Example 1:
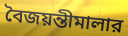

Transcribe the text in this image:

বৈজয়ন্তীমালার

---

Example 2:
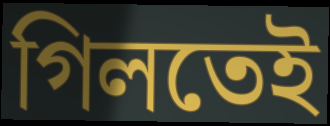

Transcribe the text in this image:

গিলতেই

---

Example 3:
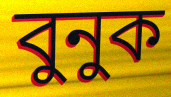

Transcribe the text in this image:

বুনুক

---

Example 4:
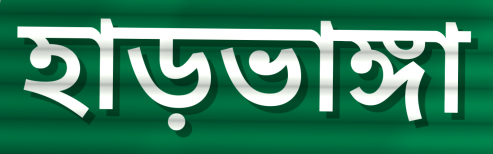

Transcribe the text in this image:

হাড়ভাঙ্গা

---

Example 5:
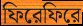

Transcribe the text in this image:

ফিরেফিরে